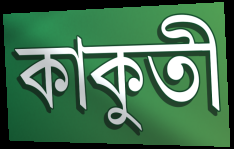
কাকুতী